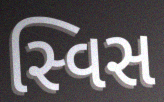
સ્વિસ